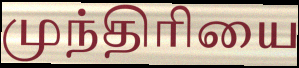
முந்திரியை